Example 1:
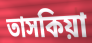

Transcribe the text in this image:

তাসকিয়া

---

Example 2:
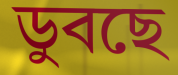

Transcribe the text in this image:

ডুবছে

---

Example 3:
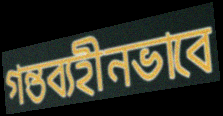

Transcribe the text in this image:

গন্তব্যহীনভাবে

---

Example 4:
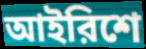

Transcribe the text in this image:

আইরিশে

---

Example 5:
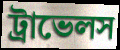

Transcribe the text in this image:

ট্রাভেলস